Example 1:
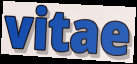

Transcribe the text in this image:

vitae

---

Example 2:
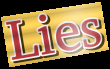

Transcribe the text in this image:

Lies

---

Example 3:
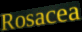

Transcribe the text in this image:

Rosacea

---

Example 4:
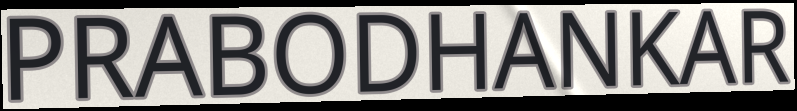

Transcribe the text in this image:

PRABODHANKAR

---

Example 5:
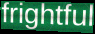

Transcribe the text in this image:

frightful